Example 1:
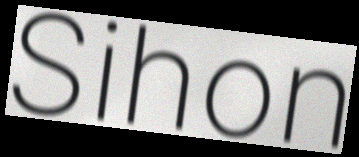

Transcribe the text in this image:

Sihon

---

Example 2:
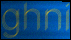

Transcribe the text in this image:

ghni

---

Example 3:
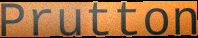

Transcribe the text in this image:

Prutton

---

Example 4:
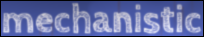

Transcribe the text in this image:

mechanistic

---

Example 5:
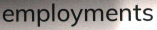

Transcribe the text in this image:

employments